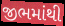
જીભમાંથી